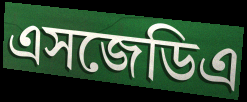
এসজেডিএ